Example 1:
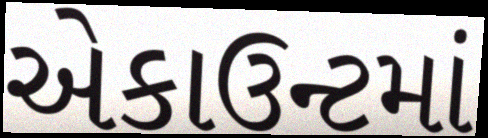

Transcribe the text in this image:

એકાઉન્ટમાં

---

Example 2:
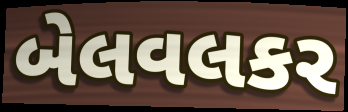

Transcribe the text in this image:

બેલવલકર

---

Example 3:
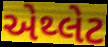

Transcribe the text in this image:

એથ્લેટ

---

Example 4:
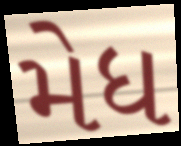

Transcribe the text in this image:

મેધ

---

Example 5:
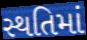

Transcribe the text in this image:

સ્થતિમાં